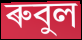
ৰুবুল